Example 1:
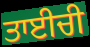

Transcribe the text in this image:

ਤਾਈਚੀ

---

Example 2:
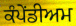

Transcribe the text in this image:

ਕੰਪੇਂਡੀਅਮ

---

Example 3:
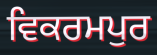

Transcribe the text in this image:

ਵਿਕਰਮਪੁਰ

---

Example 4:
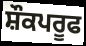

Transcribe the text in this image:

ਸ਼ੌਕਪਰੂਫ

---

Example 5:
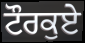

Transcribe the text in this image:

ਟੌਰਕੁਏ